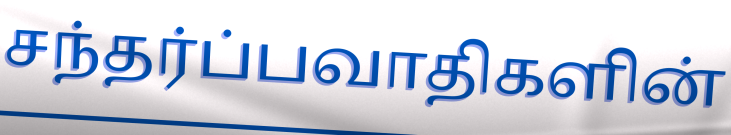
சந்தர்ப்பவாதிகளின்